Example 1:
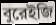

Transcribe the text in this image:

বুরেইজি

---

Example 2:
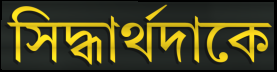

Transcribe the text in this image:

সিদ্ধার্থদাকে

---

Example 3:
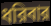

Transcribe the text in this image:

ধরিবার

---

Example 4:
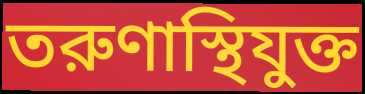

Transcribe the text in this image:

তরুণাস্থিযুক্ত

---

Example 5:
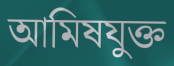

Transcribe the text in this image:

আমিষযুক্ত